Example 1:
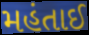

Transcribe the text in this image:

મહંતાઈ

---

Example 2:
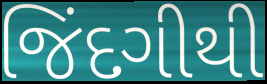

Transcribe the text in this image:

જિંદગીથી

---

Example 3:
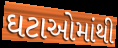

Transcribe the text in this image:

ઘટાઓમાંથી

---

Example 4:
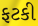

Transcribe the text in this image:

ફટકી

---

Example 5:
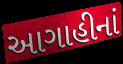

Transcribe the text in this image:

આગાહીનાં